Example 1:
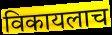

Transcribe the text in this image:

विकायलाच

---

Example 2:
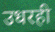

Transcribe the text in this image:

उधरही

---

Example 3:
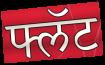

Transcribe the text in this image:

फ्लॅट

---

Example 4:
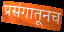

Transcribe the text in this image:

प्रसंगातूनच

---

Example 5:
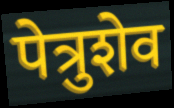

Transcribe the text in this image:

पेत्रुशेव